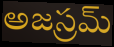
అజస్రమ్